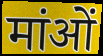
मांओं